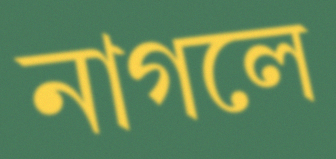
নাগলে